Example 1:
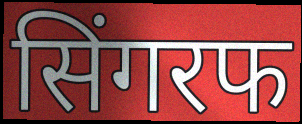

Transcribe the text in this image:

सिंगरफ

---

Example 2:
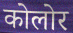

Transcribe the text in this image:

कोलोर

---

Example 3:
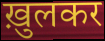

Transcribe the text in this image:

ख़ुलकर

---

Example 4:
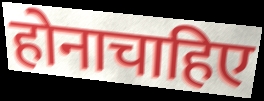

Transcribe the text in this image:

होनाचाहिए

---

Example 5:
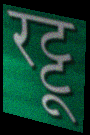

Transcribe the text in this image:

रट्टू